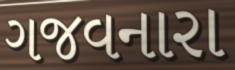
ગજવનારા